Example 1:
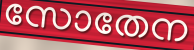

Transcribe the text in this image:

സോതേന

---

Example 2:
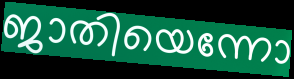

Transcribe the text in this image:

ജാതിയെന്നോ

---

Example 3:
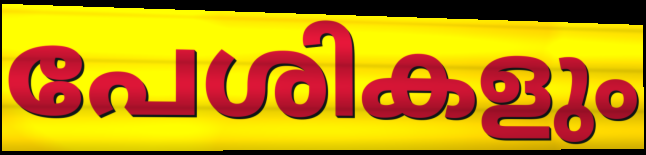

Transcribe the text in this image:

പേശികളും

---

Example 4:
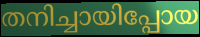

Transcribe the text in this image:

തനിച്ചായിപ്പോയ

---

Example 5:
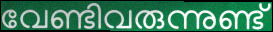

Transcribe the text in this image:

വേണ്ടിവരുന്നുണ്ട്